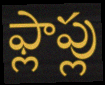
ఫ్లాప్లు